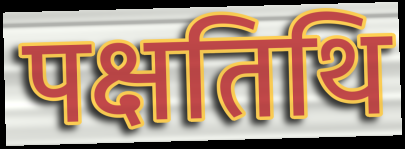
पक्षतिथि